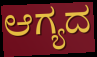
ಆಗ್ಯದ